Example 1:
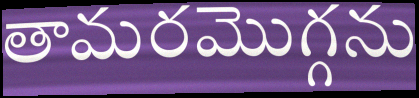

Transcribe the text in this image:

తామరమొగ్గను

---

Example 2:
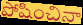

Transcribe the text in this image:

పోషించినా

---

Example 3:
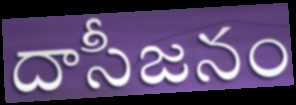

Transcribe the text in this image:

దాసీజనం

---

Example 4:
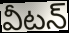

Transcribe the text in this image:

వీటన్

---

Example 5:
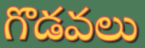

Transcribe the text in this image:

గొడవలు